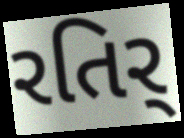
રતિર્